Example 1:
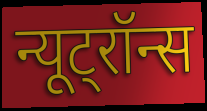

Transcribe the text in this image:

न्यूट्रॉन्स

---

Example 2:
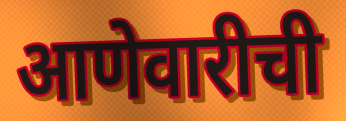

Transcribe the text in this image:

आणेवारीची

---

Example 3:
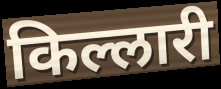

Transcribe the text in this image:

किल्लारी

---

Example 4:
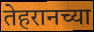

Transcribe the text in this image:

तेहरानच्या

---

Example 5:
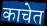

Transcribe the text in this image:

काचेत